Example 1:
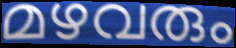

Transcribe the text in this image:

മഴവരും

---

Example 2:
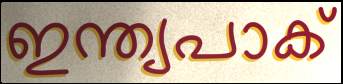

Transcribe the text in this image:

ഇന്ത്യപാക്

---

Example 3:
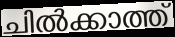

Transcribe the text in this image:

ചിൽക്കാത്ത്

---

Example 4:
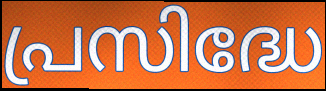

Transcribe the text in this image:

പ്രസിദ്ധേ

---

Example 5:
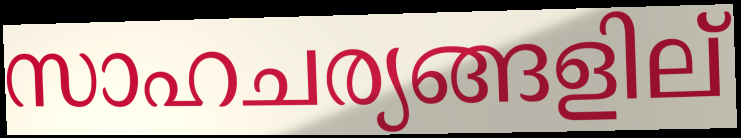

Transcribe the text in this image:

സാഹചര്യങ്ങളില്